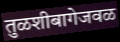
तुळशीबागेजवळ